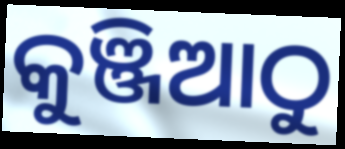
କୁଞ୍ଜିଆଠୁ